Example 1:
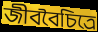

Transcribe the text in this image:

জীববৈচিত্রে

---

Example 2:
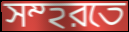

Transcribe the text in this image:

সম্হরতে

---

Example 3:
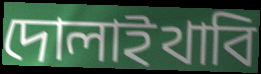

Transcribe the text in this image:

দোলাইথাবি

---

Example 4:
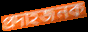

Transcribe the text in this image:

প্রদাহজনক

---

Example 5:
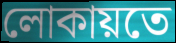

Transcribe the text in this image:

লোকায়তে